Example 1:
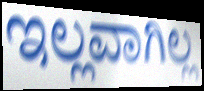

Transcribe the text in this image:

ಇಲ್ಲವಾಗಿಲ್ಲ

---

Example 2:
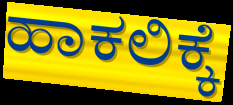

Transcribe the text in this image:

ಹಾಕಲಿಕ್ಕೆ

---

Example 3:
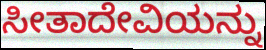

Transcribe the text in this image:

ಸೀತಾದೇವಿಯನ್ನು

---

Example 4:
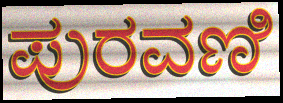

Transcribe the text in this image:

ಪುರವಣಿ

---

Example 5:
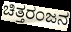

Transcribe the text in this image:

ಚಿತ್ತರಂಜನ